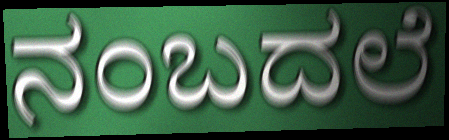
ನಂಬದಲೆ